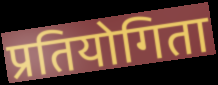
प्रतियोगिता